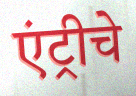
एंट्रीचे